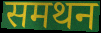
समथन